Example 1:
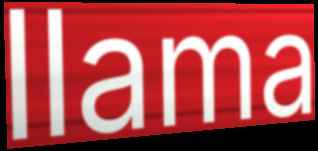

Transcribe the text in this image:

llama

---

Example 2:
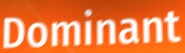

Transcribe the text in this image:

Dominant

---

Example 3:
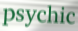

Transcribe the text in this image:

psychic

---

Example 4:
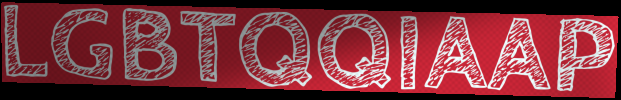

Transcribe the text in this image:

LGBTQQIAAP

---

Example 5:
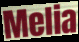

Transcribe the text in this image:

Melia